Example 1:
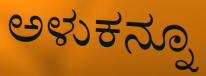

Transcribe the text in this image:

ಅಳುಕನ್ನೂ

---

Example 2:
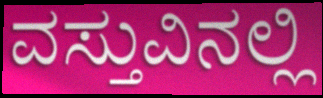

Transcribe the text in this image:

ವಸ್ತುವಿನಲ್ಲಿ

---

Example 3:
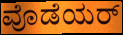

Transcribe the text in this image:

ವೊಡೆಯರ್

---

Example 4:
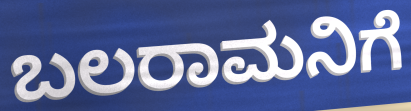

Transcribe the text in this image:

ಬಲರಾಮನಿಗೆ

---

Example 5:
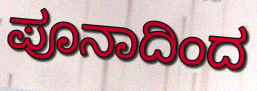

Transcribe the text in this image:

ಪೂನಾದಿಂದ